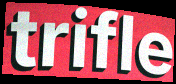
trifle